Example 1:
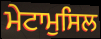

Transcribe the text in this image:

ਮੇਟਾਮੁਸਿਲ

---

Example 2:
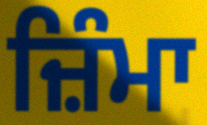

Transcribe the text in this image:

ਜ਼ਿੰਮਾ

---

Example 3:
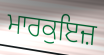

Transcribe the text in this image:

ਮਾਰਕੁਇਜ਼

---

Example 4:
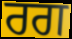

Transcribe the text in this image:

ਰਗ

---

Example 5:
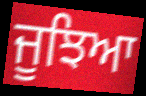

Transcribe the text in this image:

ਜੂਝਿਆ